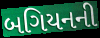
બગિયનની